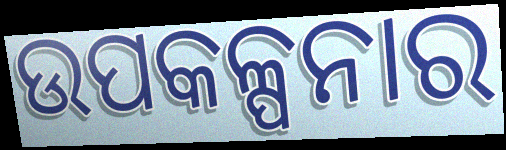
ଉପକଳ୍ପନାର